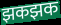
झकझक